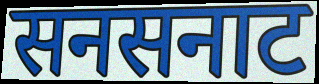
सनसनाट